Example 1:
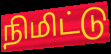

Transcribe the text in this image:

நிமிட்டு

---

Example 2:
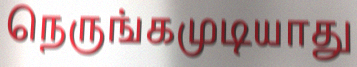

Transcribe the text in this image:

நெருங்கமுடியாது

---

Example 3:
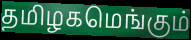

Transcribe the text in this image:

தமிழகமெங்கும்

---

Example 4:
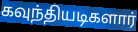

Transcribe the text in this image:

கவுந்தியடிகளார்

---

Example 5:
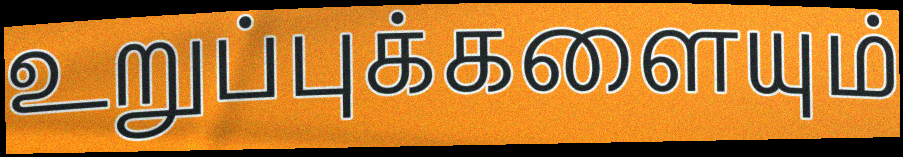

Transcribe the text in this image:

உறுப்புக்களையும்